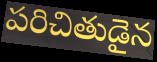
పరిచితుడైన